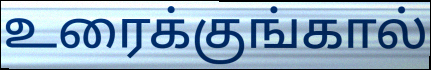
உரைக்குங்கால்